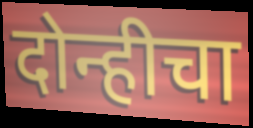
दोन्हीचा